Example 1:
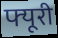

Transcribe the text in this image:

फ्यूरी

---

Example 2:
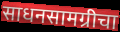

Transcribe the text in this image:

साधनसामग्रीचा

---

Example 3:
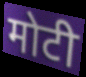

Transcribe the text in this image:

मोटी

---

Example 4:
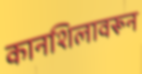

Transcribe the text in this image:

कानशिलावरून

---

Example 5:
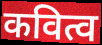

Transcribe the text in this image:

कवित्व